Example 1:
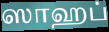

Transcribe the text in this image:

ஸாஹப்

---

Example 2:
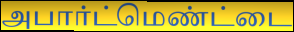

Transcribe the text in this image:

அபார்ட்மெண்ட்டை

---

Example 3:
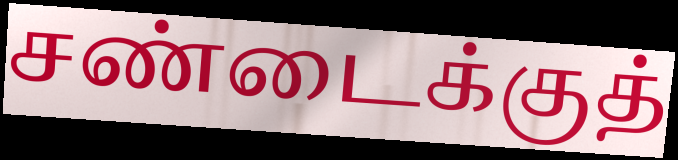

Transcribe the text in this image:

சண்டைக்குத்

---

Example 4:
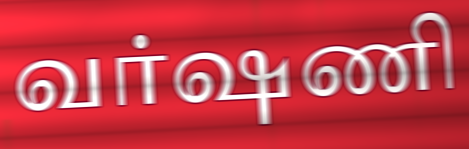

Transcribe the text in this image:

வர்ஷணி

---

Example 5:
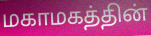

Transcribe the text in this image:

மகாமகத்தின்